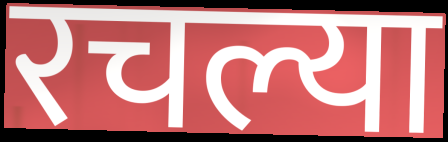
रचल्या